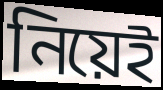
নিয়েই